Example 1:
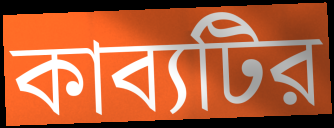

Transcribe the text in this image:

কাব্যটির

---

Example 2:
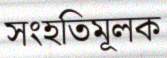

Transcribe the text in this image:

সংহতিমূলক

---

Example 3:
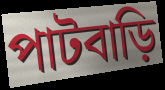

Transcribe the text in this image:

পাটবাড়ি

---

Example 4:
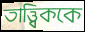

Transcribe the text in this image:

তাত্ত্বিককে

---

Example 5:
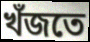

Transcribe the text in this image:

খঁজতে